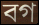
বগ